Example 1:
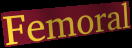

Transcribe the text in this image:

Femoral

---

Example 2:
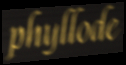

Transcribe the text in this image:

phyllode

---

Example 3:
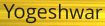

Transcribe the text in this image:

Yogeshwar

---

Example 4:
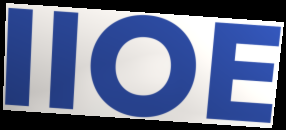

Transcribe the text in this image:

IIOE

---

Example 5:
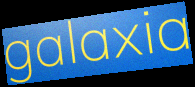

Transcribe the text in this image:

galaxia